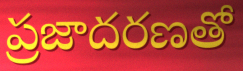
ప్రజాదరణతో